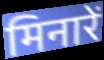
मिनारें